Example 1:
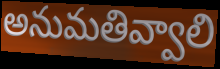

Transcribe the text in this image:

అనుమతివ్వాలి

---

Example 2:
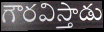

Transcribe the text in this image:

గౌరవిస్తాడు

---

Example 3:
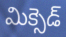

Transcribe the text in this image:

మిక్సెడ్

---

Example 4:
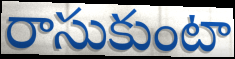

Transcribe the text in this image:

రాసుకుంటా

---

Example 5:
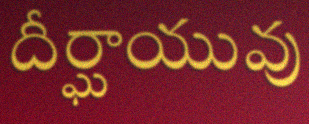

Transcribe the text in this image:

దీర్ఘాయువు